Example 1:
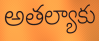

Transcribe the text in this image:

అతల్యాకు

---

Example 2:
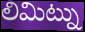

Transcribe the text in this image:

లిమిట్ను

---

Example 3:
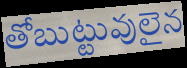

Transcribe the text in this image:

తోబుట్టువులైన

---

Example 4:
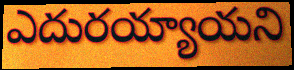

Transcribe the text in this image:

ఎదురయ్యాయని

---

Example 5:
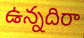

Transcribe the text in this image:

ఉన్నదిరా